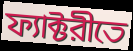
ফ্যাক্টরীতে